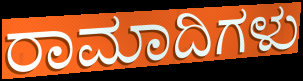
ರಾಮಾದಿಗಳು